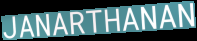
JANARTHANAN